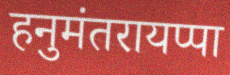
हनुमंतरायप्पा